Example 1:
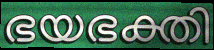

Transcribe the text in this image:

ഭയഭക്തി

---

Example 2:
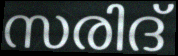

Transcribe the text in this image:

സരിദ്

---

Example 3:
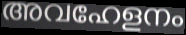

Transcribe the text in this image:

അവഹേളനം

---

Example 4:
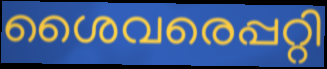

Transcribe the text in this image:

ശൈവരെപ്പറ്റി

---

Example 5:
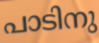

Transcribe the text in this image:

പാടിനു